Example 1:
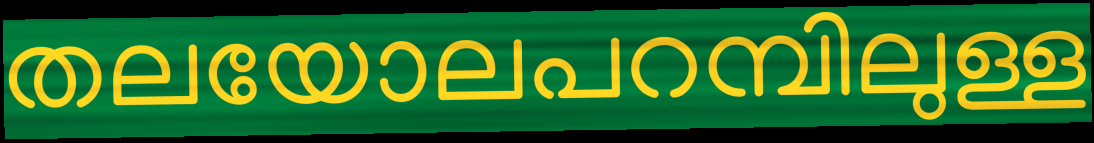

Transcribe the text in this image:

തലയോലപറമ്പിലുള്ള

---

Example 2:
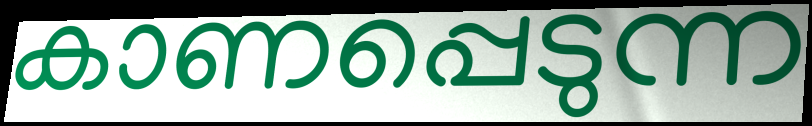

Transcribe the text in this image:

കാണപ്പെടുന്ന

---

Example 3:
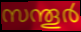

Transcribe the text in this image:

സന്തൂർ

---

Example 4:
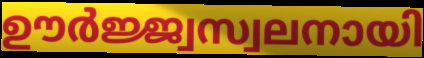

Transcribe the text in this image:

ഊർജ്ജ്വസ്വലനായി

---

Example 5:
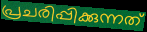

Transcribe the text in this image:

പ്രചരിപ്പിക്കുന്നത്